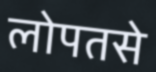
लोपतसे